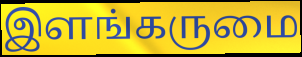
இளங்கருமை